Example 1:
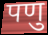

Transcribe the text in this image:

पणु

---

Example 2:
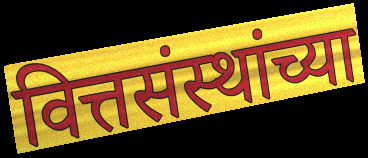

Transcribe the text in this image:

वित्तसंस्थांच्या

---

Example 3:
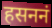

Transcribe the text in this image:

हसननं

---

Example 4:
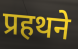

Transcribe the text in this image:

प्रहथने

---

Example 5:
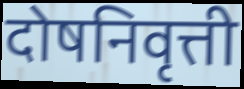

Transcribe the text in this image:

दोषनिवृत्ती